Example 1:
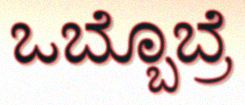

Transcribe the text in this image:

ಒಬ್ಬೊಬ್ರೆ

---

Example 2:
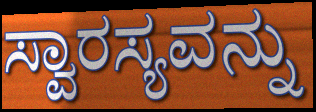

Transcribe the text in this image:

ಸ್ವಾರಸ್ಯವನ್ನು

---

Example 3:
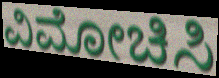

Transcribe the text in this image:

ವಿಮೋಚಿಸಿ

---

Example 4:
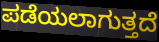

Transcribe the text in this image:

ಪಡೆಯಲಾಗುತ್ತದೆ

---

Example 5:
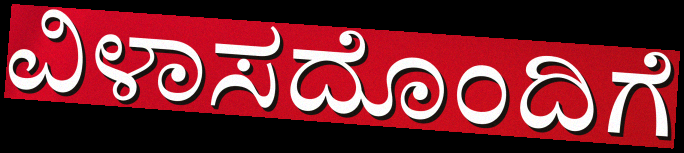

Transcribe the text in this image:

ವಿಳಾಸದೊಂದಿಗೆ